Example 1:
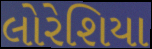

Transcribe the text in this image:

લોરેશિયા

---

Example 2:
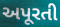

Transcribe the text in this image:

અપૂરતી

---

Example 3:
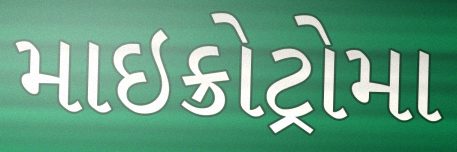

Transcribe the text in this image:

માઇક્રોટ્રોમા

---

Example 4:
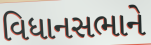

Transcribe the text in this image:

વિધાનસભાને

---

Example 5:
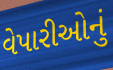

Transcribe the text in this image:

વેપારીઓનું